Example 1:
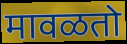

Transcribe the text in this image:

मावळतो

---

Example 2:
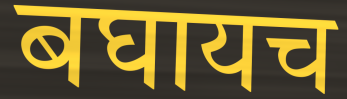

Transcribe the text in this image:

बघायच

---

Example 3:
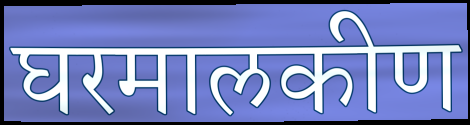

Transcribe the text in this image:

घरमालकीण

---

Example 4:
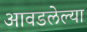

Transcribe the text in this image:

आवडलेल्या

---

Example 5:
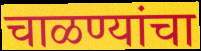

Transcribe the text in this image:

चाळण्यांचा